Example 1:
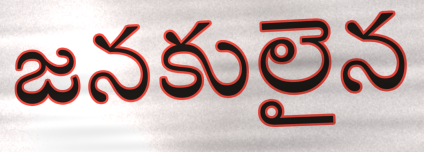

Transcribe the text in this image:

జనకులైన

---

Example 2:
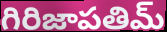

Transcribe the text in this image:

గిరిజాపతిమ్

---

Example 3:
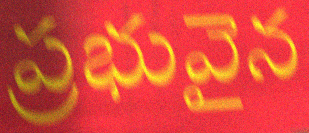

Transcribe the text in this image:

ప్రభువైన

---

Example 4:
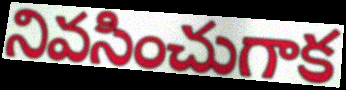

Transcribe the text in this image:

నివసించుగాక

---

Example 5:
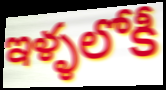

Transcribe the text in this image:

ఇళ్ళలోకీ